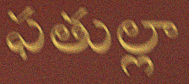
ఫతుల్లా